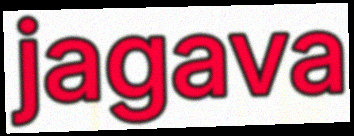
jagava